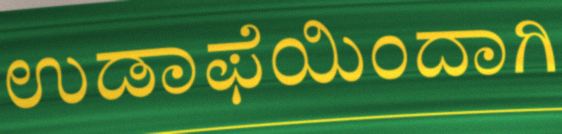
ಉಡಾಫೆಯಿಂದಾಗಿ